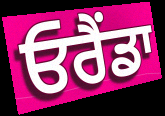
ਓਰੈਂਡਾ